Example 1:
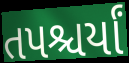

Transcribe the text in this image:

તપશ્ચર્યાં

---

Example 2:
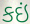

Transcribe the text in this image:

કઇં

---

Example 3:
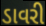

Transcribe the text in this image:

ડાવરી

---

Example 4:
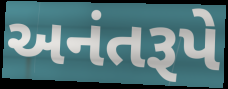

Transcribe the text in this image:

અનંતરૂપે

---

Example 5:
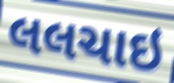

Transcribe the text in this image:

લલચાઇ